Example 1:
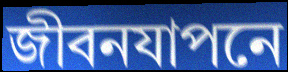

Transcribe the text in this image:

জীবনযাপনে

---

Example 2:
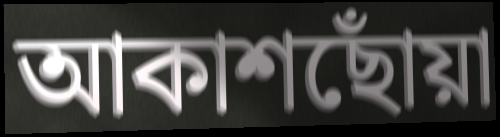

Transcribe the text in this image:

আকাশছোঁয়া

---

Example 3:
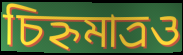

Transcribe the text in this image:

চিহ্নমাত্রও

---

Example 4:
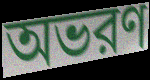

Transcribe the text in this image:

অভরণ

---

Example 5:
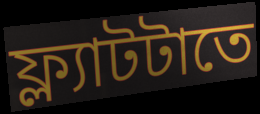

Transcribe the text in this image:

ফ্ল্যাটটাতে